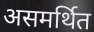
असमर्थित